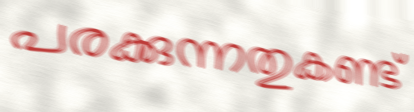
പരക്കുന്നതുകണ്ട്